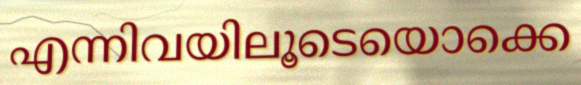
എന്നിവയിലൂടെയൊക്കെ